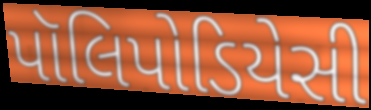
પૉલિપોડિયેસી